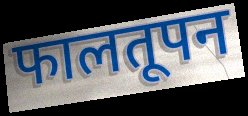
फालतूपन